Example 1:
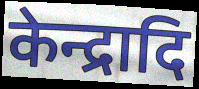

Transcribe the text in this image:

केन्द्रादि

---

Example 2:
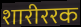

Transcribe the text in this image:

शारीररक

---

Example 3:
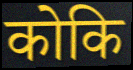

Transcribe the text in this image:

कोकि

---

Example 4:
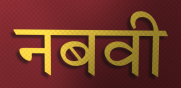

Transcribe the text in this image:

नबवी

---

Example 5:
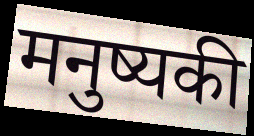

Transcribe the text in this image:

मनुष्यकी